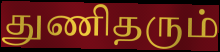
துணிதரும்